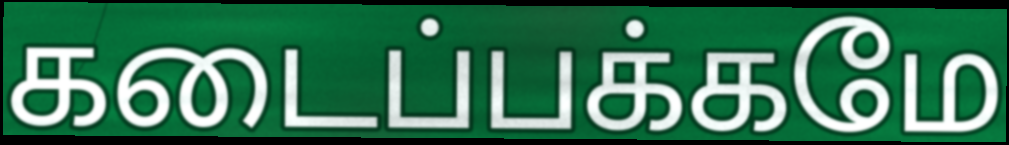
கடைப்பக்கமே